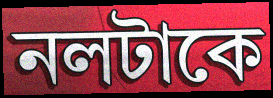
নলটাকে